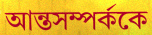
আন্তসম্পর্ককে